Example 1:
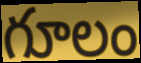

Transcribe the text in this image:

గూలం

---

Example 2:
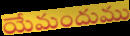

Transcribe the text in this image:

యేమందుము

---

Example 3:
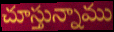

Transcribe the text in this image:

చూస్తున్నాము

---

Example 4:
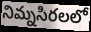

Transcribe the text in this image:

నిమ్నసిరలలో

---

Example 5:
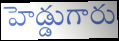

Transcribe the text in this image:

హెడ్డుగారు